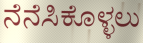
ನೆನೆಸಿಕೊಳ್ಳಲು